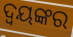
ଦ୍ବୟଙ୍କର